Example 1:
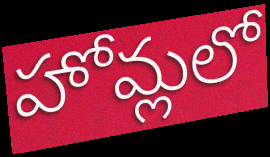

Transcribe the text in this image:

హోమ్లలో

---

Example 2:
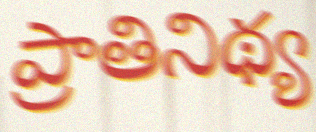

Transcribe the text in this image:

ప్రాతినిథ్య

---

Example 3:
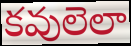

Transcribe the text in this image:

కవులెలా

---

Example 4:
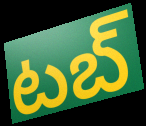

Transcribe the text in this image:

టబ్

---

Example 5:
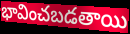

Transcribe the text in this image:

భావించబడతాయి